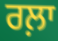
ਰਲ਼ਾ